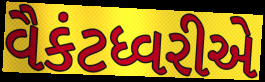
વૈકંટધ્વરીએ